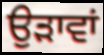
ਉੜਾਵਾਂ